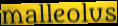
malleolus